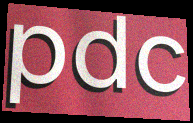
pdc